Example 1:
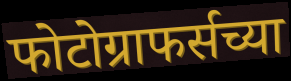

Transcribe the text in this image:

फोटोग्राफर्सच्या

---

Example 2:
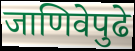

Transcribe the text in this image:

जाणिवेपुढे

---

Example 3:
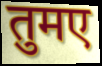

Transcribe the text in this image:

तुमए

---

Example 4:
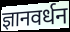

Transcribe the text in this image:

ज्ञानवर्धन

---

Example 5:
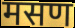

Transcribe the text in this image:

मसण